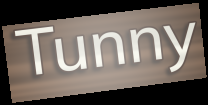
Tunny